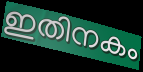
ഇതിനകം